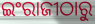
ଇଂରାଜୀଠାରୁ